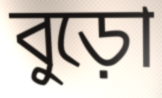
বুড়ো